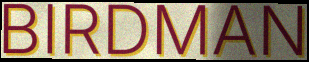
BIRDMAN